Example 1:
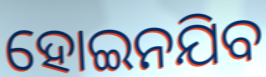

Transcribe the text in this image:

ହୋଇନଯିବ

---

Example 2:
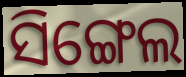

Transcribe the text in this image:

ସିଙ୍ଗେଲ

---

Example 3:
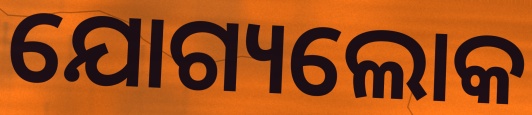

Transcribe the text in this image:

ଯୋଗ୍ୟଲୋକ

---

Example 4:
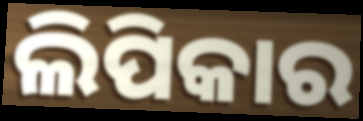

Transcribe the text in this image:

ଲିପିକାର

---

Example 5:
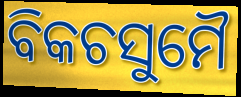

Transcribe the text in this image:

ବିକଚସୁମୈ